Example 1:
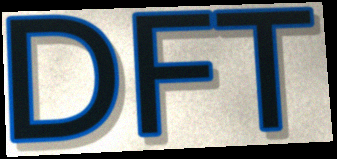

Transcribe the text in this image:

DFT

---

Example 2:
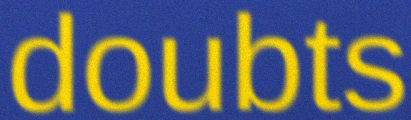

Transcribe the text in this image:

doubts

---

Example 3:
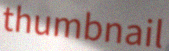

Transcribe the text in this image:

thumbnail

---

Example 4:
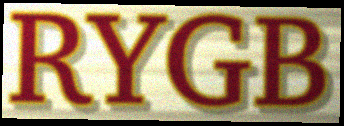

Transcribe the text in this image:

RYGB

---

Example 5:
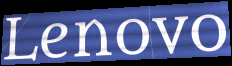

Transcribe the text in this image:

Lenovo